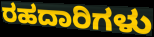
ರಹದಾರಿಗಳು